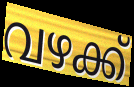
വഴക്ക്